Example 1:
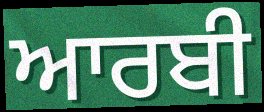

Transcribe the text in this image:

ਆਰਬੀ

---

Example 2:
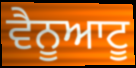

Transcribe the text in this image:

ਵੈਨੂਆਟੂ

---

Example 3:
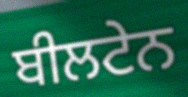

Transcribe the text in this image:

ਬੀਲਟੇਨ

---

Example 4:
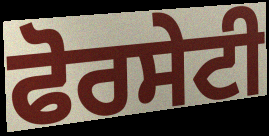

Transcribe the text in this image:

ਫੋਰਸੇਟੀ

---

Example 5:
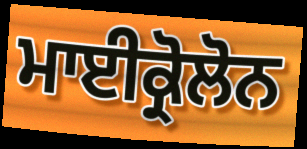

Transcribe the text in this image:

ਮਾਈਕ੍ਰੋਲੋਨ